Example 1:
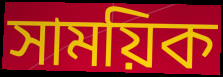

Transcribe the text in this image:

সাময়িক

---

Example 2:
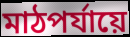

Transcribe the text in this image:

মাঠপর্যায়ে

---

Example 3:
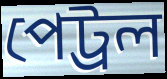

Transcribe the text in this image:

পেট্রল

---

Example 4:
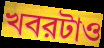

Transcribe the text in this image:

খবরটাও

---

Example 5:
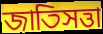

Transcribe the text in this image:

জাতিসত্তা